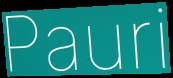
Pauri